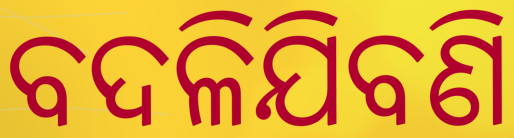
ବଦଳିଯିବଣି